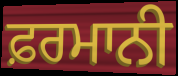
ਫ਼ਰਮਾਨੀ